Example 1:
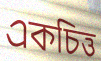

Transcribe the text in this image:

একচিত্ত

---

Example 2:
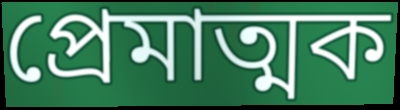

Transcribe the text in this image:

প্রেমাত্মক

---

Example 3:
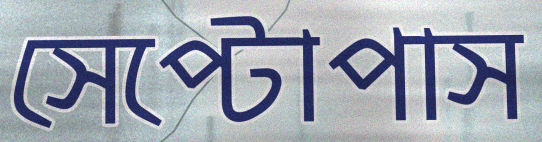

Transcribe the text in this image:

সেপ্টোপাস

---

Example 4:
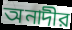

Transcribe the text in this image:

অনাদীর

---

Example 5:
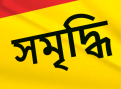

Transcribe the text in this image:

সমৃদ্ধি